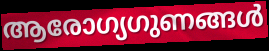
ആരോഗ്യഗുണങ്ങൾ